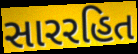
સારરહિત